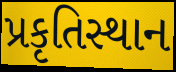
પ્રકૃતિસ્થાન